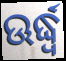
ଊର୍ଦ୍ଧ୍ବ